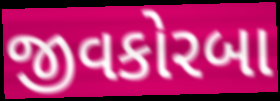
જીવકોરબા